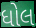
ધોલ